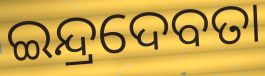
ଇନ୍ଦ୍ରଦେବତା